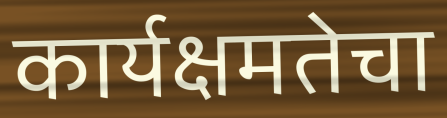
कार्यक्षमतेचा